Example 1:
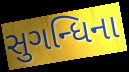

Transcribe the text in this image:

સુગન્ધિના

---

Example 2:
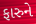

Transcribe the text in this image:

ફારુને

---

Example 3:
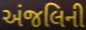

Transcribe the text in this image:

અંજલિની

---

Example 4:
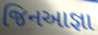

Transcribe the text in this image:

જિનઆજ્ઞા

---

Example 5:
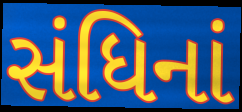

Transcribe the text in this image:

સંધિનાં